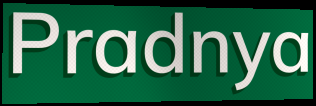
Pradnya